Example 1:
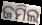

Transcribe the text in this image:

ଜମିଲ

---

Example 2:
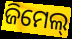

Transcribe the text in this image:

ଜିମେଲ୍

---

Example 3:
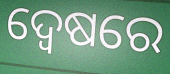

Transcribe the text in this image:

ଦ୍ୱେଷରେ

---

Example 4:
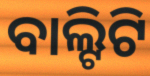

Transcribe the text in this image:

ବାଲ୍ଟିଟି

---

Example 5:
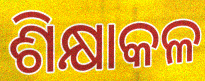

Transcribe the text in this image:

ଶିକ୍ଷାକଳ